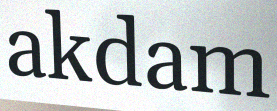
akdam